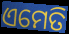
ଏମେତି